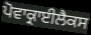
ਪੋਵਾਕ੍ਰਾਈਲੈਕਸ